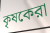
কৃষকেরা